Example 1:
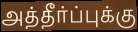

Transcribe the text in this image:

அத்தீர்ப்புக்கு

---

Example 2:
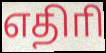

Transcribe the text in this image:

எதிரி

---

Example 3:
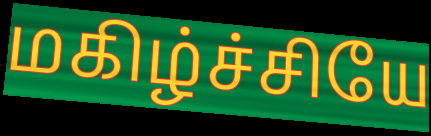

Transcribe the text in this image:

மகிழ்ச்சியே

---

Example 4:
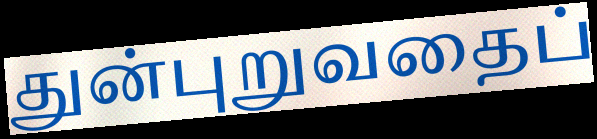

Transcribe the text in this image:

துன்புறுவதைப்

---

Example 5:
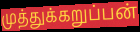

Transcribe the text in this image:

முத்துக்கறுப்பன்